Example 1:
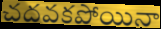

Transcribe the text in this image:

చదవకపోయినా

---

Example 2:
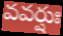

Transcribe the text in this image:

వవర్షుః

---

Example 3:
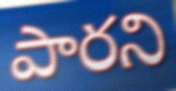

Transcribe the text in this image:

పారని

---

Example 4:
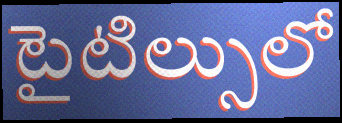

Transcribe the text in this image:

టైటిల్సులో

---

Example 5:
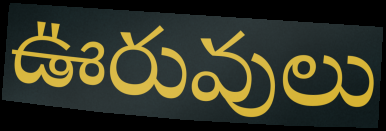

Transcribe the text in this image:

ఊరువులు